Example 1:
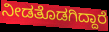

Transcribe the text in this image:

ನೀಡತೊಡಗಿದ್ದಾರೆ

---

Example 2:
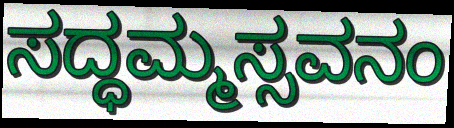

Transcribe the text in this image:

ಸದ್ಧಮ್ಮಸ್ಸವನಂ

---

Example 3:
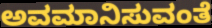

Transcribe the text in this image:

ಅವಮಾನಿಸುವಂತೆ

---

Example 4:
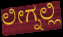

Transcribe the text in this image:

ಲೀಗ್ನಲ್ಲಿ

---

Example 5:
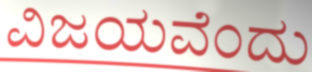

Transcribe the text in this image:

ವಿಜಯವೆಂದು